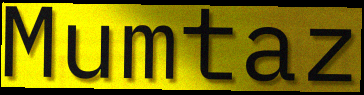
Mumtaz